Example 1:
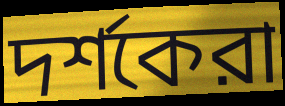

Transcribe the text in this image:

দর্শকেরা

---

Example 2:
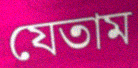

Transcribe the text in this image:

যেতাম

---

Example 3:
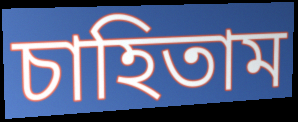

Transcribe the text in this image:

চাহিতাম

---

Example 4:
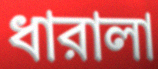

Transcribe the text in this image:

ধারালা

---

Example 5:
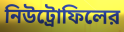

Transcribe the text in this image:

নিউট্রোফিলের